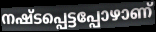
നഷ്ടപ്പെട്ടപ്പോഴാണ്